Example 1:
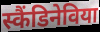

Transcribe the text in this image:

स्कैंडिनेविया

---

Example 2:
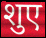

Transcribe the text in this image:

शुए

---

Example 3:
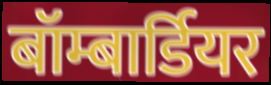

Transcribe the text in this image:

बॉम्बार्डियर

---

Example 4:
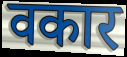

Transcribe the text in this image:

वकार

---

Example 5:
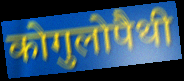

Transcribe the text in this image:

कोगुलोपैथी